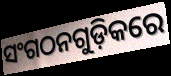
ସଂଗଠନଗୁଡ଼ିକରେ